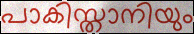
പാകിസ്താനിയും